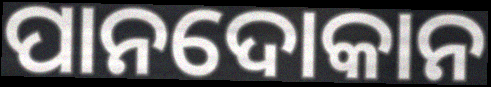
ପାନଦୋକାନ